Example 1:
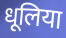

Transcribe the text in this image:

धूलिया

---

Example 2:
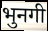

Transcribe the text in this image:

भुनगी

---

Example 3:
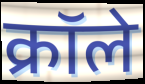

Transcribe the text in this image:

क्रॉले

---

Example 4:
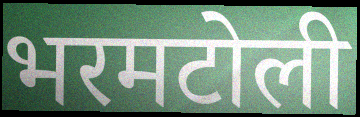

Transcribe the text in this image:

भरमटोली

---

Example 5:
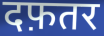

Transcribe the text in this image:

दफ़तर